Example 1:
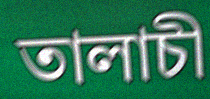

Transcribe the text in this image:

তালাচী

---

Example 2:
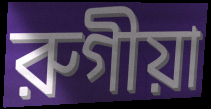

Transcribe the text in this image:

ৰুগীয়া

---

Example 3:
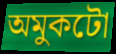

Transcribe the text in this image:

অমুকটো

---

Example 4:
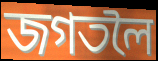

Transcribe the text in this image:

জগতলৈ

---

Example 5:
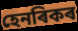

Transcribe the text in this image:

হেনৰিকৰ